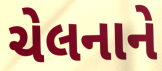
ચેલનાને